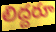
లిద్దరూ